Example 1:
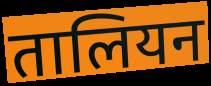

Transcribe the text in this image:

तालियन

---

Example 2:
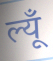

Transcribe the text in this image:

ल्यूँ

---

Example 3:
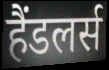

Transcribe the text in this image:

हैंडलर्स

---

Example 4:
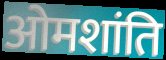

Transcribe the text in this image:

ओमशांति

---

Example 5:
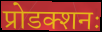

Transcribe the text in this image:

प्रोडक्शनः